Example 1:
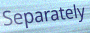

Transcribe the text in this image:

Separately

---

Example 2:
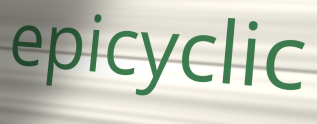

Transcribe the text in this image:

epicyclic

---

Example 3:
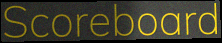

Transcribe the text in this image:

Scoreboard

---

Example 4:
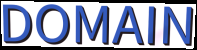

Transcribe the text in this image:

DOMAIN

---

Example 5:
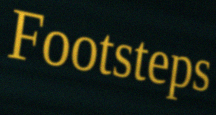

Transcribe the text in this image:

Footsteps